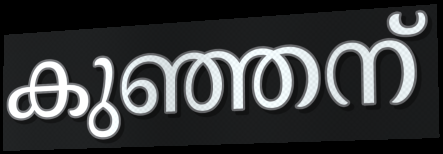
കുഞ്ഞന്